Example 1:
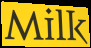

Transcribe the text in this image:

Milk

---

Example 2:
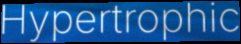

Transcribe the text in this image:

Hypertrophic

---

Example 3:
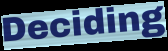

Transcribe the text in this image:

Deciding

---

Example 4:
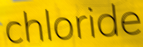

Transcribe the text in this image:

chloride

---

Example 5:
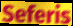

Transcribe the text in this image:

Seferis